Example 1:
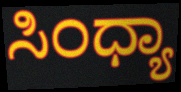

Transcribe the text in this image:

ಸಿಂಧ್ಯಾ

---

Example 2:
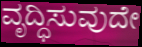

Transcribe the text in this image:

ವೃದ್ಧಿಸುವುದೇ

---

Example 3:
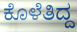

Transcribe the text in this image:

ಕೊಳೆತಿದ್ದ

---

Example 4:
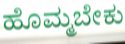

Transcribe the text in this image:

ಹೊಮ್ಮಬೇಕು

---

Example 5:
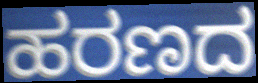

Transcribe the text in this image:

ಹರಣದ